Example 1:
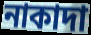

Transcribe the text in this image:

নাকাদা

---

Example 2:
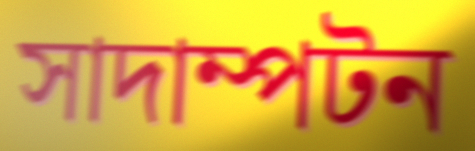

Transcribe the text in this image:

সাদাম্পটন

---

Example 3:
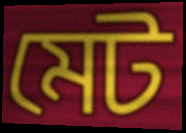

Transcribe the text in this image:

মেট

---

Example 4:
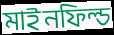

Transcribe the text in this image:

মাইনফিল্ড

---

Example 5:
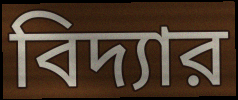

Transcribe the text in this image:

বিদ্যার